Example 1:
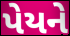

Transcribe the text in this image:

પેયને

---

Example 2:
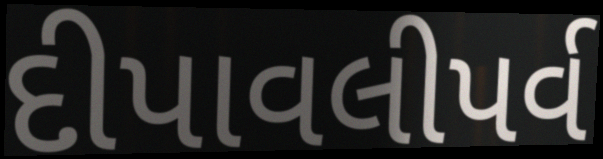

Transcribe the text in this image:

દીપાવલીપર્વ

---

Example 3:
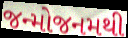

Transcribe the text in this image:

જન્મોજનમથી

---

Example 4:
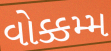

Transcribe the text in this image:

વોક્કમ્મ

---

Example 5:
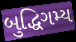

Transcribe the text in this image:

બુદ્ધિગમ્ય